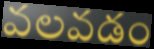
వలవడం